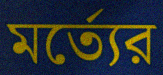
মর্ত্যের